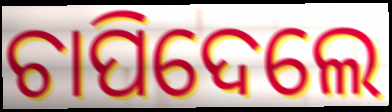
ଚାପିଦେଲେ